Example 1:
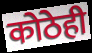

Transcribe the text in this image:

कोठेही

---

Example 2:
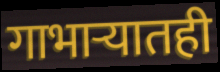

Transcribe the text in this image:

गाभाऱ्यातही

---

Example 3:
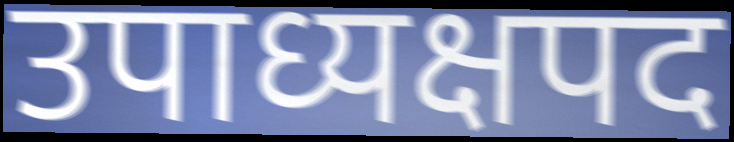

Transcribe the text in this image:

उपाध्यक्षपद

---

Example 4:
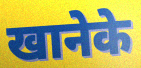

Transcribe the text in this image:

खानेके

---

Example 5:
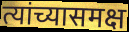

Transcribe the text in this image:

त्यांच्यासमक्ष